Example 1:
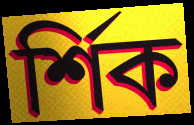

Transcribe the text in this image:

র্শিক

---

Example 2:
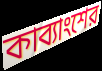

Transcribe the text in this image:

কাব্যাংশের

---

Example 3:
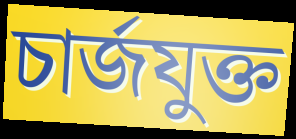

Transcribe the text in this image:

চার্জযুক্ত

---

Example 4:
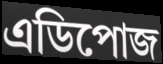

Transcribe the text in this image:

এডিপোজ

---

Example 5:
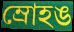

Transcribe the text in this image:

ম্রোহঙ